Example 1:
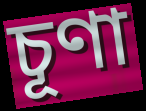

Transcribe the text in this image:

চূণা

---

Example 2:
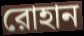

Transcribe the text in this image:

রোহান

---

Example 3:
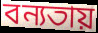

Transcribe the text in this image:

বন্যতায়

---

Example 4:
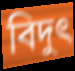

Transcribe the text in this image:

বিদুৎ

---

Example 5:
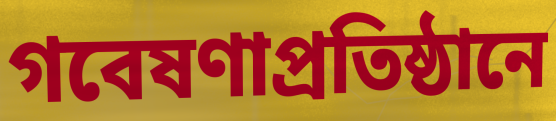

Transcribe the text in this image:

গবেষণাপ্রতিষ্ঠানে